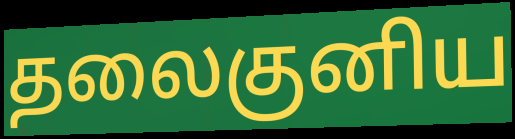
தலைகுனிய